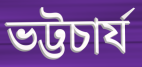
ভট্টচাৰ্য